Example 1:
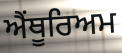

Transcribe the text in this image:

ਐਂਥੂਰਿਅਮ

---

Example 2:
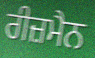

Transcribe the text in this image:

ਰੀਜ਼ਮੈਨ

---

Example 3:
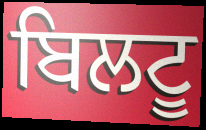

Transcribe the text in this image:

ਬਿਲਟੂ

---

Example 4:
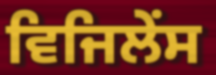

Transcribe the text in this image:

ਵਿਜਿਲੇਂਸ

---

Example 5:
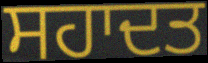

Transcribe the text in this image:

ਸਹਾਦਤ